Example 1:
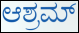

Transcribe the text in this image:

ಆಶ್ರಮ್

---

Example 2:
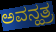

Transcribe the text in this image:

ಅವನ್ಹತ್ರ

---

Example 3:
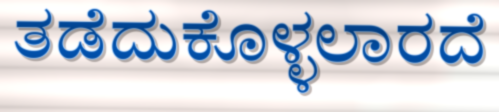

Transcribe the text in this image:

ತಡೆದುಕೊಳ್ಳಲಾರದೆ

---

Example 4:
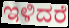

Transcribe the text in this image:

ಇಳಿದರೆ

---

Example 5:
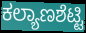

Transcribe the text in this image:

ಕಲ್ಯಾಣಶೆಟ್ಟಿ